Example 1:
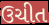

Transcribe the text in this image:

ઉચીત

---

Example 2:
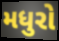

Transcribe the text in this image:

મધુરો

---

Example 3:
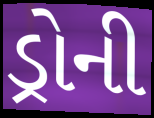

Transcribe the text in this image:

ડ્રોની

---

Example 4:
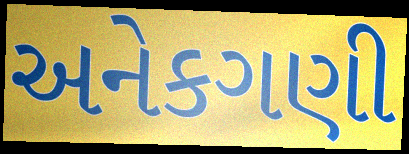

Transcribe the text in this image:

અનેકગણી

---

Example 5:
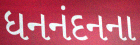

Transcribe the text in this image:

ધનનંદનના